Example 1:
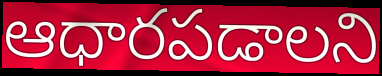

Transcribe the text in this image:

ఆధారపడాలని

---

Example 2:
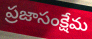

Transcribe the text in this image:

ప్రజాసంక్షేమ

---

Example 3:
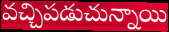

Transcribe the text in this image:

వచ్చిపడుచున్నాయి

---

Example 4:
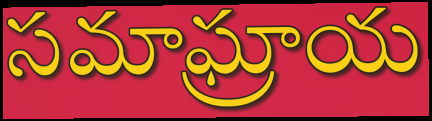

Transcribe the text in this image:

సమాఘ్రాయ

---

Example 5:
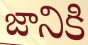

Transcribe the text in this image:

జానికి